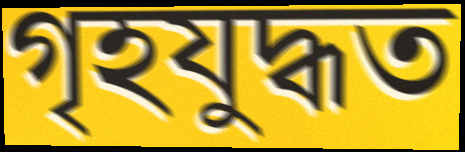
গৃহযুদ্ধত